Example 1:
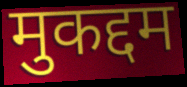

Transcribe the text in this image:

मुकद्दम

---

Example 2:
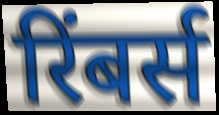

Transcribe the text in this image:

रिंबर्स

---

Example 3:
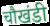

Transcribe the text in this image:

चौखंडी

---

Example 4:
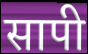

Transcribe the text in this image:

सापी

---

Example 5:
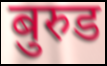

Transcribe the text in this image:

बुरुड